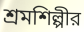
শ্রমশিল্পীর